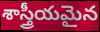
శాస్త్రీయమైన